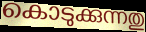
കൊടുക്കുന്നതു